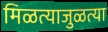
मिळत्याजुळत्या